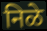
निळे